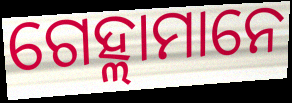
ଗେହ୍ଲାମାନେ